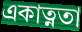
একাত্নতা